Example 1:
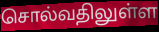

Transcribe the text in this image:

சொல்வதிலுள்ள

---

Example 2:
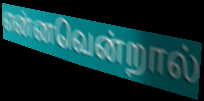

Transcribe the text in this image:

என்னவென்றால்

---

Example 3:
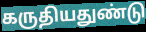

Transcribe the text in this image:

கருதியதுண்டு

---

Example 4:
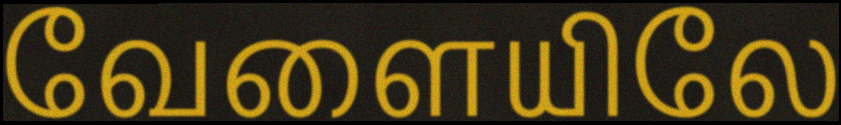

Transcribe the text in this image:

வேளையிலே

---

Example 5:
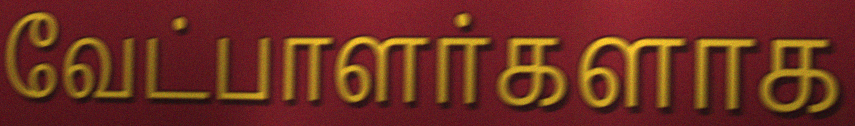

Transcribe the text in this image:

வேட்பாளர்களாக